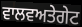
ਵਾਲਵਅਤੇਗੇਟ